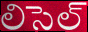
లిసెల్